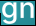
gn